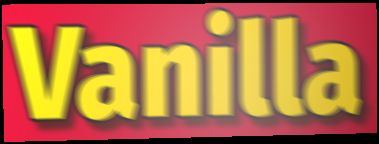
Vanilla